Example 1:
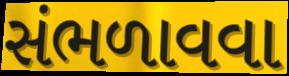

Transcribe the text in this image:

સંભળાવવા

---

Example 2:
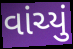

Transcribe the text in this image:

વાંચ્યું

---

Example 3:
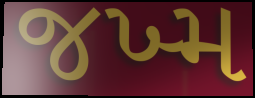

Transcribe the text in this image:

જખ્મ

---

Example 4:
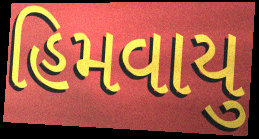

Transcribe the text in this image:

હિમવાયુ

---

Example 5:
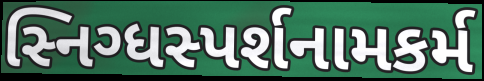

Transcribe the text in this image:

સ્નિગ્ધસ્પર્શનામકર્મ